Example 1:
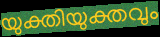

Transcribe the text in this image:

യുക്തിയുക്തവും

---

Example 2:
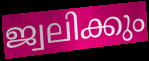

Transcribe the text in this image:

ജ്വലിക്കും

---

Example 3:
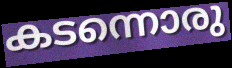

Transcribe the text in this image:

കടന്നൊരു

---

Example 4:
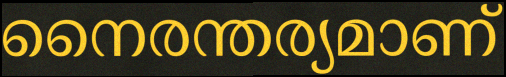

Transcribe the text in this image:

നൈരന്തര്യമാണ്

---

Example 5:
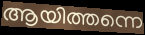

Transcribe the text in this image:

ആയിത്തന്നെ